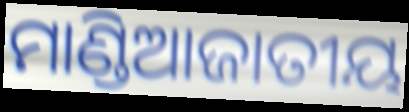
ମାଣ୍ଡିଆଜାତୀୟ